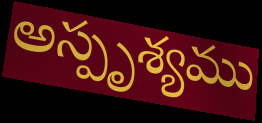
అస్పృశ్యము